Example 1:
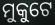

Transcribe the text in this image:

ମୁକୁଟେ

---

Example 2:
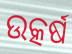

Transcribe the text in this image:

ଉତ୍କର୍ଷ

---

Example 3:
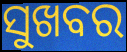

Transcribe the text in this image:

ସୁଖବର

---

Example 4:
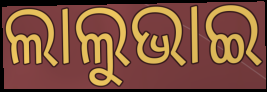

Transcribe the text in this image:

ଲାଲୁଭାଇ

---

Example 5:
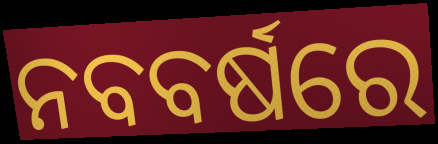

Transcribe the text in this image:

ନବବର୍ଷରେ